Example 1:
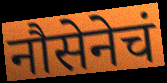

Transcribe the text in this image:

नौसेनेचं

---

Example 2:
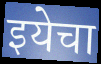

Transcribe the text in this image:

इयेचा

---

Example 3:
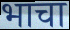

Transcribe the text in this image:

भाचा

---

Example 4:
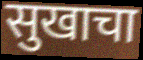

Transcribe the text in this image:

सुखाचा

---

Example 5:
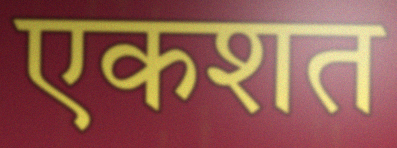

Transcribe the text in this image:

एकशत